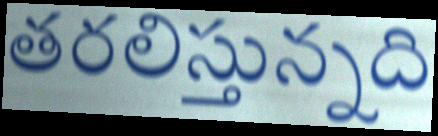
తరలిస్తున్నది